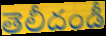
తెలీదండీ